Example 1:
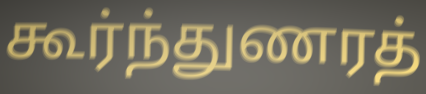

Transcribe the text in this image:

கூர்ந்துணரத்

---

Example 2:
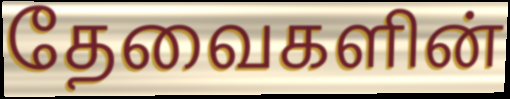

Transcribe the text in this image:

தேவைகளின்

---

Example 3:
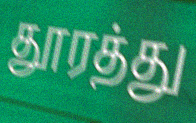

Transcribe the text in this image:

தூரத்து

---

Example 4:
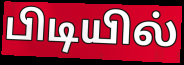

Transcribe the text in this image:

பிடியில்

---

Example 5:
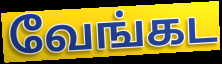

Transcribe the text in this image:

வேங்கட